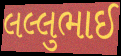
લલ્લુભાઈ